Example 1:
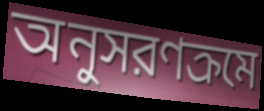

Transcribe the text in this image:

অনুসরণক্রমে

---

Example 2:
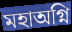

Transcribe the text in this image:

মহাঅগ্নি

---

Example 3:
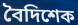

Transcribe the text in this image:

বৈদিশেক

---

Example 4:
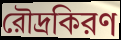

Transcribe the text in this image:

রৌদ্রকিরণ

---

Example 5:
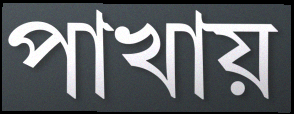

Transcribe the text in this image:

পাখায়